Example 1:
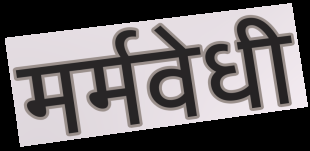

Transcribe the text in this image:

मर्मवेधी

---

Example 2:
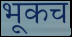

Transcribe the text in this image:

भूकच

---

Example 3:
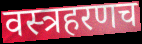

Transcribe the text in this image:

वस्त्रहरणच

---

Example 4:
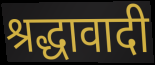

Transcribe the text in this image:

श्रद्धावादी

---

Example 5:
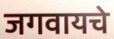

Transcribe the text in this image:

जगवायचे